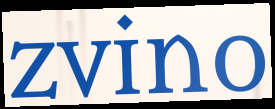
zvino